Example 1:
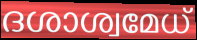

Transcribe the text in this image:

ദശാശ്വമേധ്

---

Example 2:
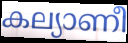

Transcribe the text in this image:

കല്യാണീ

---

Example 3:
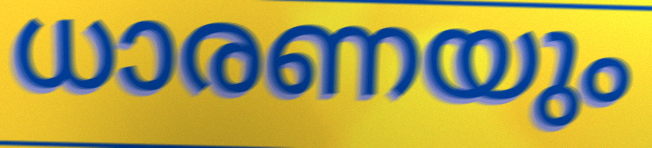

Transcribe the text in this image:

ധാരണയും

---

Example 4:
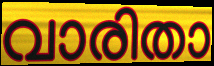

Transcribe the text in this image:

വാരിതാ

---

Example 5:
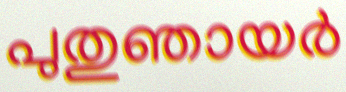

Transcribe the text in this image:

പുതുഞായർ